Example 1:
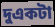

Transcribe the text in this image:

দুএকটা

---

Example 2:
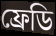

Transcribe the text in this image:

ফ্রেডি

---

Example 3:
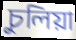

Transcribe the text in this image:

চুলিয়া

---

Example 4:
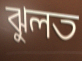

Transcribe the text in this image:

ঝুলত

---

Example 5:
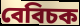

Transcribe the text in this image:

বেবিচক